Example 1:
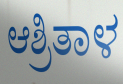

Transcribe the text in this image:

ಆಶ್ರಿತಾಳ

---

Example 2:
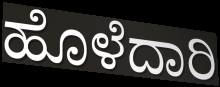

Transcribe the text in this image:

ಹೊಳೆದಾರಿ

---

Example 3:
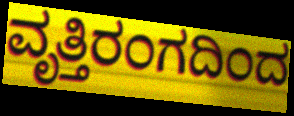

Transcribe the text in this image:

ವೃತ್ತಿರಂಗದಿಂದ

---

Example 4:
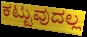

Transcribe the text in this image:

ಕಟ್ಟುವುದಲ್ಲ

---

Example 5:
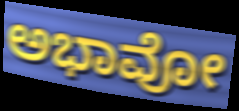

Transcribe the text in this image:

ಅಭಾವೋ